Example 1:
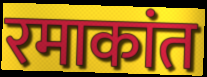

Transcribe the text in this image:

रमाकांत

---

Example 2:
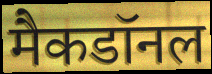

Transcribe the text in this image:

मैकडॉनल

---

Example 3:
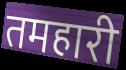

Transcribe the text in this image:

तमहारी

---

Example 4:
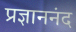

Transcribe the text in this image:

प्रज्ञाननंद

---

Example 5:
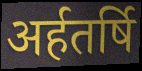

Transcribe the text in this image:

अर्हतर्षि